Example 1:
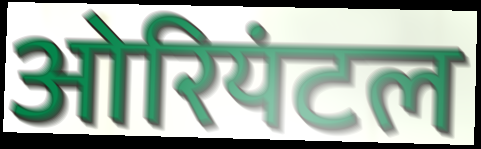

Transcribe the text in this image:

ओरियंटल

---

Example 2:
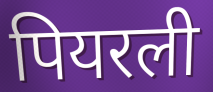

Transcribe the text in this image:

पियरली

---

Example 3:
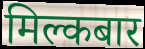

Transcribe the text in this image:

मिल्कबार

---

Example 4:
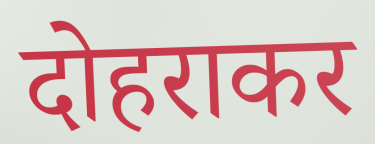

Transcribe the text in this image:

दोहराकर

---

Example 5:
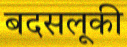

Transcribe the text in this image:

बदसलूकी